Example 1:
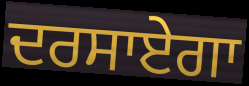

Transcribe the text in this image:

ਦਰਸਾਏਗਾ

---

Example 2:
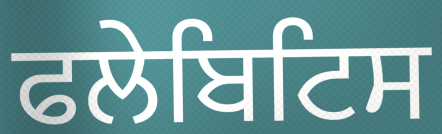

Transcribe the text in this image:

ਫਲੇਬਿਟਿਸ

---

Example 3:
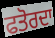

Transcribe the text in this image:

ਫਤੋਰਦਾ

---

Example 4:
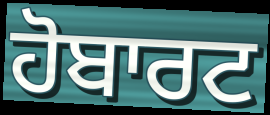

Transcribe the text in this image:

ਹੋਬਾਰਟ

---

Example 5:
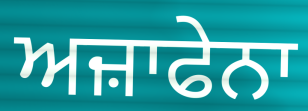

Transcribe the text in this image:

ਅਜ਼ਾਫੇਨਾ